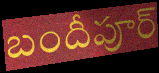
బందీపూర్